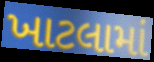
ખાટલામાં